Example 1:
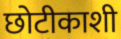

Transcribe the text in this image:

छोटीकाशी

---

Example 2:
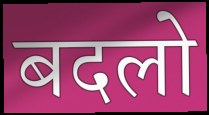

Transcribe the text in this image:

बदलो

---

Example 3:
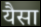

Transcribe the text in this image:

यैसा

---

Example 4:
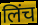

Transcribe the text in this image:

लिंच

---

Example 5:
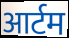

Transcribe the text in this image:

आर्टम